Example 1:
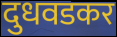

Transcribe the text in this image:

दुधवडकर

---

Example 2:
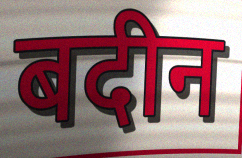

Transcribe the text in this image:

बदीन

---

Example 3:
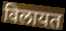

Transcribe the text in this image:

विलायत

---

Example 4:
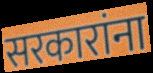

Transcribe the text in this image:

सरकारांना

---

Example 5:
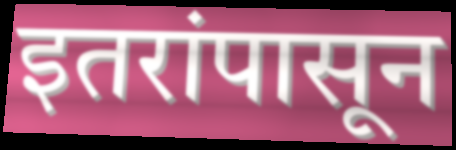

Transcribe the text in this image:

इतरांपासून